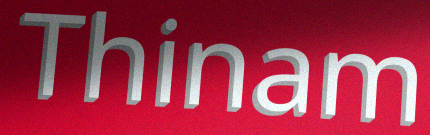
Thinam